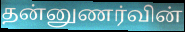
தன்னுணர்வின்